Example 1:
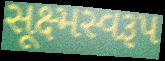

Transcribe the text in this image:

સૂક્ષ્મસ્વરૂપ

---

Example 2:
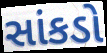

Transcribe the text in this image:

સાંકડો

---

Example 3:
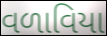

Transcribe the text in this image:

વળાવિયા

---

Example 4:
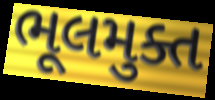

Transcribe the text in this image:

ભૂલમુક્ત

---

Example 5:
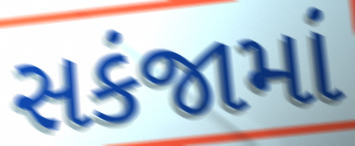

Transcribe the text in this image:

સકંજામાં